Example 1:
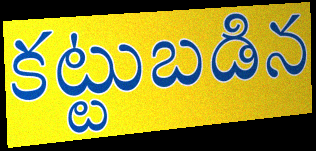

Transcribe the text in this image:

కట్టుబడిన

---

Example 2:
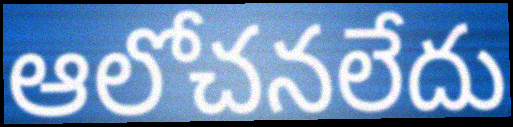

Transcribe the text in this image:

ఆలోచనలేదు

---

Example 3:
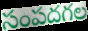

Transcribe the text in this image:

సంపదగల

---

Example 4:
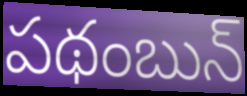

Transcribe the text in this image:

పథంబున్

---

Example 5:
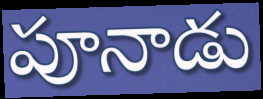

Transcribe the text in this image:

పూనాడు